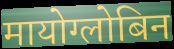
मायोग्लोबिन